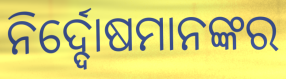
ନିର୍ଦ୍ଦୋଷମାନଙ୍କର